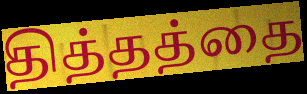
தித்தத்தை